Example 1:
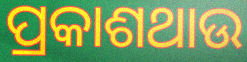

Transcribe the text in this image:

ପ୍ରକାଶଥାଉ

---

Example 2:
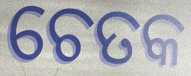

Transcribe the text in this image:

ଚେତକ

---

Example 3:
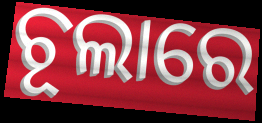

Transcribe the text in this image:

ଚୂଲାରେ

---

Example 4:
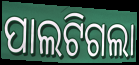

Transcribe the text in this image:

ପାଲଟିଗଲା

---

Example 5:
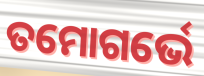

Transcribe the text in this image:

ତମୋଗର୍ଭେ